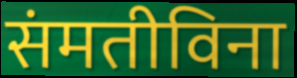
संमतीविना